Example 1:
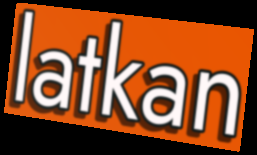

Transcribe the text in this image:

latkan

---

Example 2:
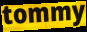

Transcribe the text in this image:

tommy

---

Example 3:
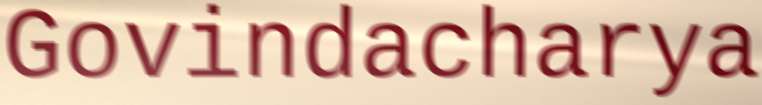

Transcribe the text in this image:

Govindacharya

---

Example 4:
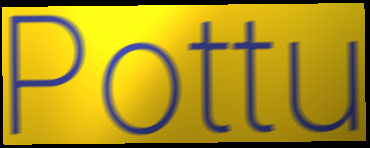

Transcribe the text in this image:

Pottu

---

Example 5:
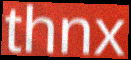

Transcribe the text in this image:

thnx